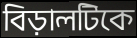
বিড়ালটিকে